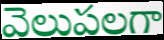
వెలుపలగా